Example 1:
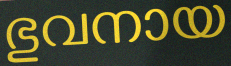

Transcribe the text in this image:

ഭുവനായ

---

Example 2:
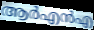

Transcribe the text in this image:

ആർഎൻഎ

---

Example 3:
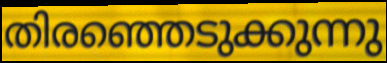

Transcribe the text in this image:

തിരഞ്ഞെടുക്കുന്നു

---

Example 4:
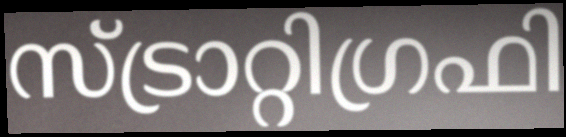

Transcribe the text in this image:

സ്ട്രാറ്റിഗ്രഫി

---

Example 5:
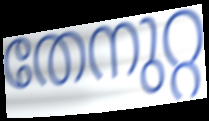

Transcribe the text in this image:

തേനുറ്റ